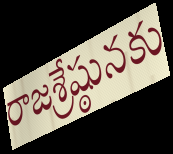
రాజశ్రేష్ఠునకు